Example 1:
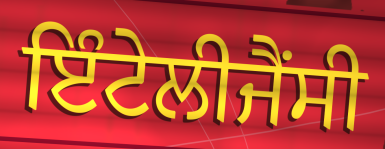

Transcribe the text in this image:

ਇੰਟੇਲੀਜੈਂਸੀ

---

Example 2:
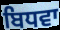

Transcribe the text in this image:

ਬਿਧਵਾ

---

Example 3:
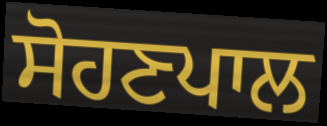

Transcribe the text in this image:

ਸੋਹਣਪਾਲ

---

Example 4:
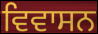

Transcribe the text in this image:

ਵਿਵਾਸਨ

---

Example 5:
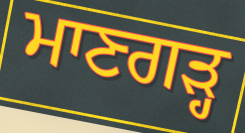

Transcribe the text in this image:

ਮਾਣਗੜ੍ਹ